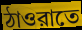
ঠাওরাতে